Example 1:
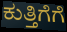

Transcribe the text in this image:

ಕುತ್ತಿಗೆಗೆ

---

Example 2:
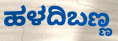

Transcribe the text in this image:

ಹಳದಿಬಣ್ಣ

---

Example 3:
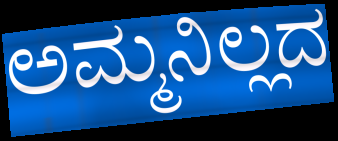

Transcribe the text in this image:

ಅಮ್ಮನಿಲ್ಲದ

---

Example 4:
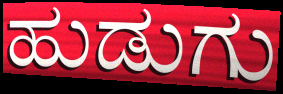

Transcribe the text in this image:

ಹುಡುಗು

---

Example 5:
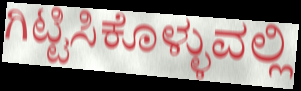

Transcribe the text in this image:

ಗಿಟ್ಟಿಸಿಕೊಳ್ಳುವಲ್ಲಿ